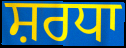
ਸ਼ਰਧਾ